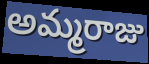
అమ్మరాజు